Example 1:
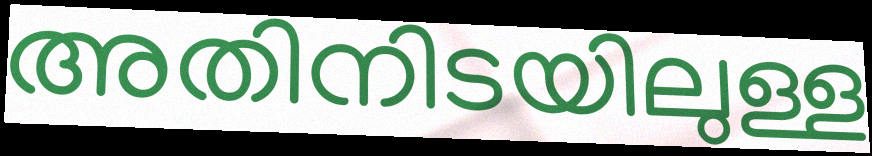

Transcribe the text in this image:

അതിനിടയിലുള്ള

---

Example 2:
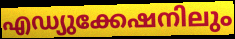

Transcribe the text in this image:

എഡ്യുക്കേഷനിലും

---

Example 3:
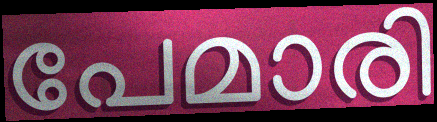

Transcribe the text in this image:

പേമാരി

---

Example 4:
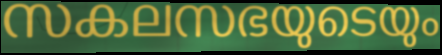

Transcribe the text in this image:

സകലസഭയുടെയും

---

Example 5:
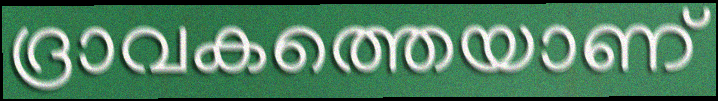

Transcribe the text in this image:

ദ്രാവകത്തെയാണ്